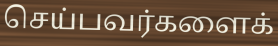
செய்பவர்களைக்